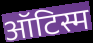
ऑटिस्म